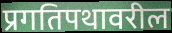
प्रगतिपथावरील